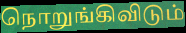
நொறுங்கிவிடும்